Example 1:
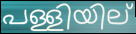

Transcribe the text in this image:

പള്ളിയില്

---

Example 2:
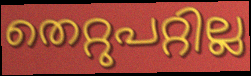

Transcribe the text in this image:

തെറ്റുപറ്റില്ല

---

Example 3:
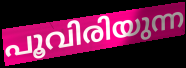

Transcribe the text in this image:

പൂവിരിയുന്ന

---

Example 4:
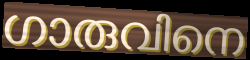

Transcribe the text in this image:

ഗാരുവിനെ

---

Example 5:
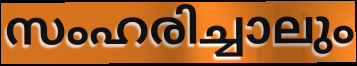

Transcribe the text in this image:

സംഹരിച്ചാലും